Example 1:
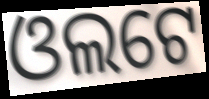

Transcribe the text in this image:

ଓଲଟେ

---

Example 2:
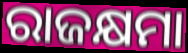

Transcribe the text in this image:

ରାଜକ୍ଷମା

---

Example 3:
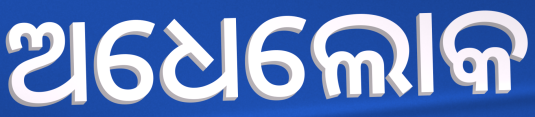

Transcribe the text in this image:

ଅଧେଲୋକ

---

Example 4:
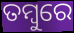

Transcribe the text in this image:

ତମ୍ବୁରେ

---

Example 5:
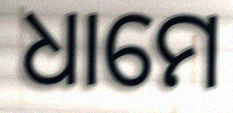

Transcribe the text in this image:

ଧାମେ